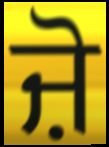
ਜ਼ੋ